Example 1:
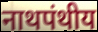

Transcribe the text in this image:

नाथपंथीय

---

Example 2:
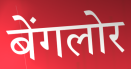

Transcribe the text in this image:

बेंगलोर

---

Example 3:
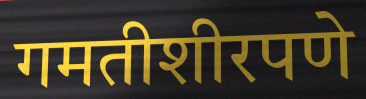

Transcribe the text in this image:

गमतीशीरपणे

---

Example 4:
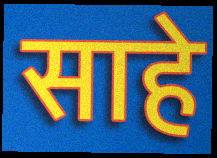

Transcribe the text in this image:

साहे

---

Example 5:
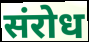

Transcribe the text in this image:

संरोध